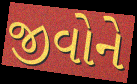
જીવોને